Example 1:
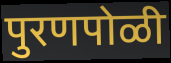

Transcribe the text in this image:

पुरणपोळी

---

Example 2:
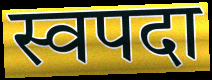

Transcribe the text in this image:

स्वपदा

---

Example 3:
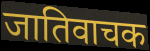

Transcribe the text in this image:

जातिवाचक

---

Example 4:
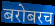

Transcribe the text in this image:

बरोबरच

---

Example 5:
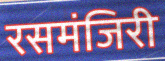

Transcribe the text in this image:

रसमंजिरी